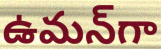
ఉమన్‌గా